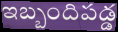
ఇబ్బందిపడ్డ